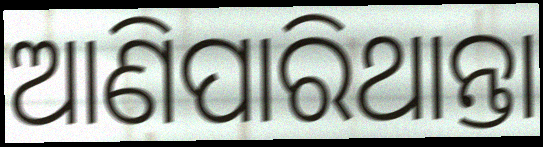
ଆଣିପାରିଥାନ୍ତା